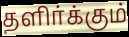
தளிர்க்கும்